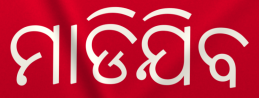
ମାଡିଯିବ